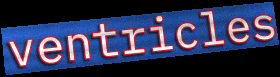
ventricles